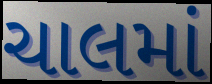
ચાલમાં